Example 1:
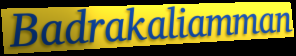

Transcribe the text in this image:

Badrakaliamman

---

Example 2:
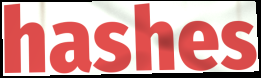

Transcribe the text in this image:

hashes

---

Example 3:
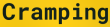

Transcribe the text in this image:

Cramping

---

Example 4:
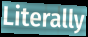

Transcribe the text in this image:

Literally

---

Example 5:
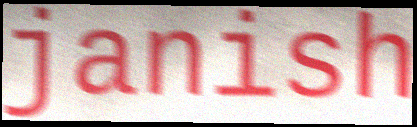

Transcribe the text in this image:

janish